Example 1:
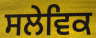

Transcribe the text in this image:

ਸਲੇਵਿਕ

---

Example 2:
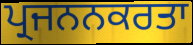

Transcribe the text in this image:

ਪ੍ਰਜਨਨਕਰਤਾ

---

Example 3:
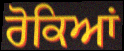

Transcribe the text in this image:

ਰੋਕਿਆਂ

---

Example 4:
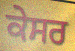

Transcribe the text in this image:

ਕੇਸਰ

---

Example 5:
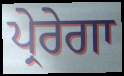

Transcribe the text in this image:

ਪ੍ਰੇਰੇਗਾ